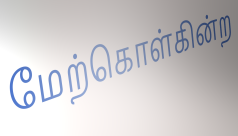
மேற்கொள்கின்ற